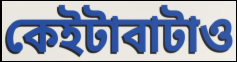
কেইটাবাটাও